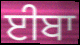
ਈਬਾ